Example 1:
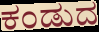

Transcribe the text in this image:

ಕಂಡುದ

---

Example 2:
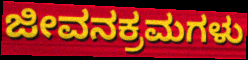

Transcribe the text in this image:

ಜೀವನಕ್ರಮಗಳು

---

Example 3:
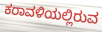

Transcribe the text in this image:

ಕರಾವಳಿಯಲ್ಲಿರುವ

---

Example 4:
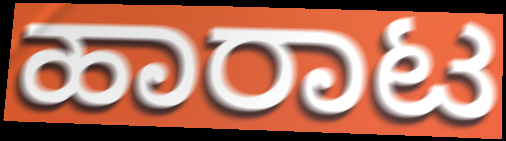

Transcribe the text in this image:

ಹಾರಾಟ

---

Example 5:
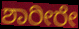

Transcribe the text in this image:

ಶಾರೀರೇ